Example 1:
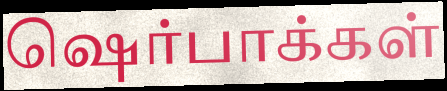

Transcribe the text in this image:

ஷெர்பாக்கள்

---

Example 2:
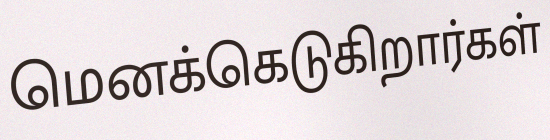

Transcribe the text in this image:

மெனக்கெடுகிறார்கள்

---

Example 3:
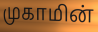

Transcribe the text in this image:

முகாமின்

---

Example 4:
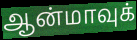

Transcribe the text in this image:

ஆன்மாவுக்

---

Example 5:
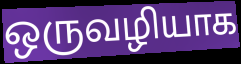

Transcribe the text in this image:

ஒருவழியாக